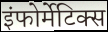
इंफोर्मेटिक्स